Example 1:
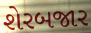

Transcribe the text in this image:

શેરબજાર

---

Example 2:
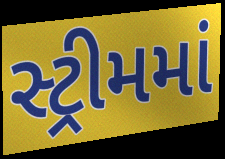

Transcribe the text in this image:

સ્ટ્રીમમાં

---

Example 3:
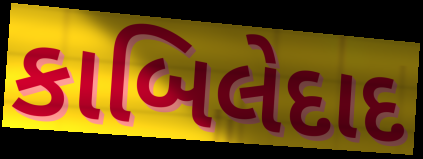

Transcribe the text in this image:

કાબિલેદાદ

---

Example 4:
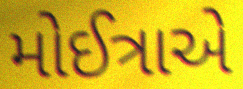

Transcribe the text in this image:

મોઈત્રાએ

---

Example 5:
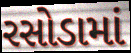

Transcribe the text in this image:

રસોડામાં